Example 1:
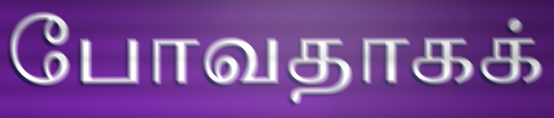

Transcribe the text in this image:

போவதாகக்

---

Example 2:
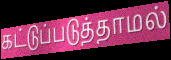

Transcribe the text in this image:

கட்டுப்படுத்தாமல்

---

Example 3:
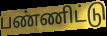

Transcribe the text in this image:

பண்ணிட்டு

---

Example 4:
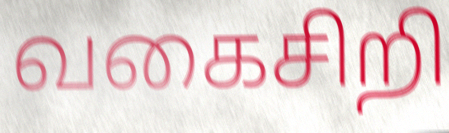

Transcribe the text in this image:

வகைசிறி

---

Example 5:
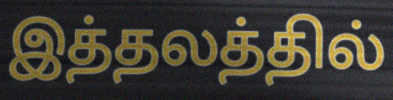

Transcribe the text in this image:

இத்தலத்தில்